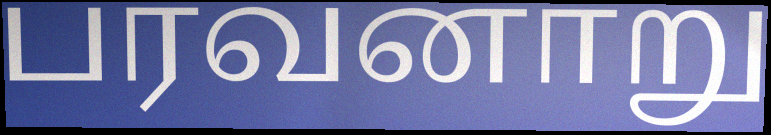
பரவனாறு